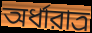
অর্ধারাত্র